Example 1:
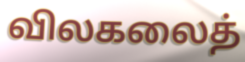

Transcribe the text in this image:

விலகலைத்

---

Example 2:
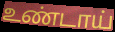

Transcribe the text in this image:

உண்டாய்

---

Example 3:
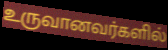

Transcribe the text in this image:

உருவானவர்களில்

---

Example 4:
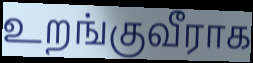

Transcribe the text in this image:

உறங்குவீராக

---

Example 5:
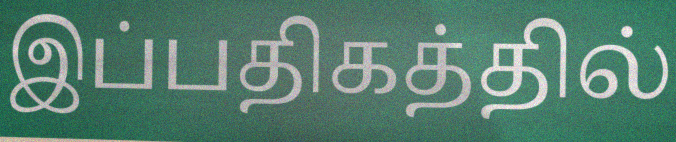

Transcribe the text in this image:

இப்பதிகத்தில்